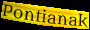
Pontianak